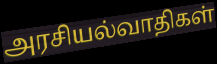
அரசியல்வாதிகள்